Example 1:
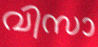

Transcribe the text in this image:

വിസാ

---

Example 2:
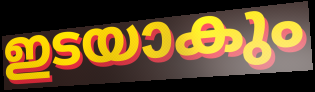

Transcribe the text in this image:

ഇടയാകും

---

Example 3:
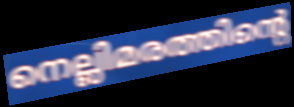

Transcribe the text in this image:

നെല്ലിമരത്തിന്റെ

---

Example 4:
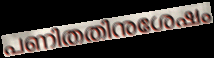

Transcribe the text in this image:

പണിതതിനുശേഷം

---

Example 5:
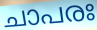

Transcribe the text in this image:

ചാപരഃ